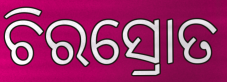
ଚିରସ୍ରୋତ